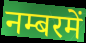
नम्बरमें